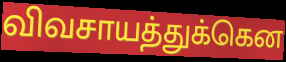
விவசாயத்துக்கென